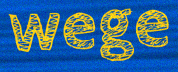
wege